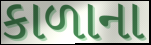
કાળાના